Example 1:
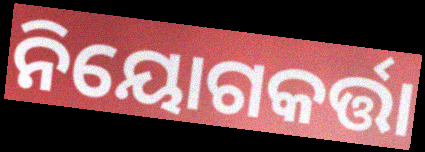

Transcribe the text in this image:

ନିୟୋଗକର୍ତ୍ତା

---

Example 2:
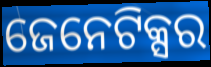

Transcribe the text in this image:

ଜେନେଟିକ୍ସର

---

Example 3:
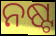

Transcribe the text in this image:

ନଷ୍ଟ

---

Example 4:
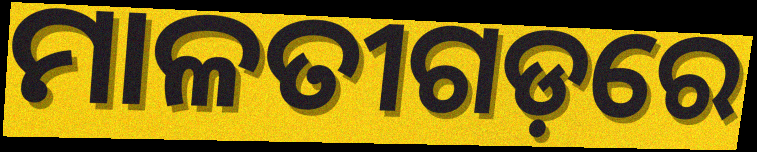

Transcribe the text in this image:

ମାଳତୀଗଡ଼ରେ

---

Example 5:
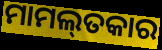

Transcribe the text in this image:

ମାମଲ୍‌ତକାର